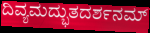
ದಿವ್ಯಮದ್ಭುತದರ್ಶನಮ್